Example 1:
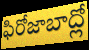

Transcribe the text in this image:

ఫిరోజాబాద్లో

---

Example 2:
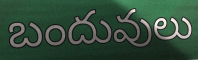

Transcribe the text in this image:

బందువులు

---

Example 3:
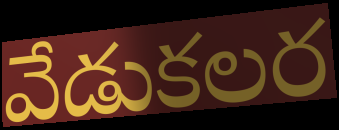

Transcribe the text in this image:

వేడుకలర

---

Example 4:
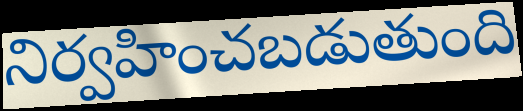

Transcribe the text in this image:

నిర్వహించబడుతుంది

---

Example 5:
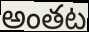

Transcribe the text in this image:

అంతట